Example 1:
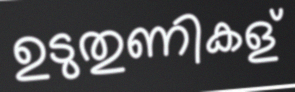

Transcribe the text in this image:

ഉടുതുണികള്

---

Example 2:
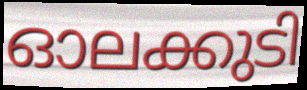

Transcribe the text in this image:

ഓലക്കുടി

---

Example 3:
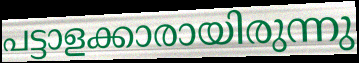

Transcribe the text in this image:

പട്ടാളക്കാരായിരുന്നു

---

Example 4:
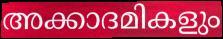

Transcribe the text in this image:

അക്കാദമികളും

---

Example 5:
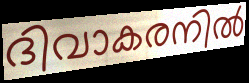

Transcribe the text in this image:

ദിവാകരനിൽ